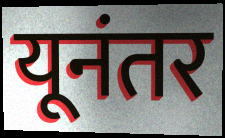
यूनंतर